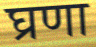
घ्रणा